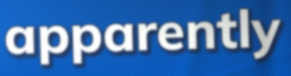
apparently